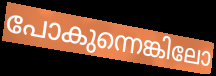
പോകുന്നെങ്കിലോ